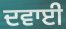
ਦਵਾਈ